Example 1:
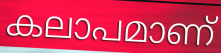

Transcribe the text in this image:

കലാപമാണ്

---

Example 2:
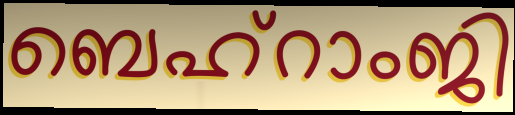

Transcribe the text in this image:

ബെഹ്റാംജി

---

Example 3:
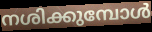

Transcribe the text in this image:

നശിക്കുമ്പോൾ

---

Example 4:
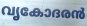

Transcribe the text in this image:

വൃകോദരൻ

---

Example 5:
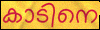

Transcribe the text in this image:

കാടിനെ